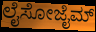
ಲೈಸೋಜೈಮ್